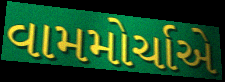
વામમોર્ચાએ